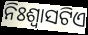
ନିଃଶ୍ୱାସଟିଏ